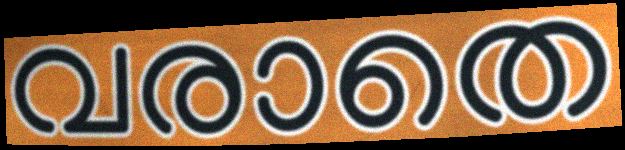
വരാതെ